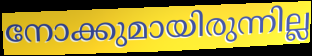
നോക്കുമായിരുന്നില്ല